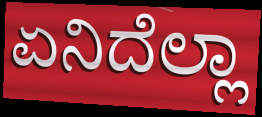
ಏನಿದೆಲ್ಲಾ